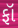
ફૉ